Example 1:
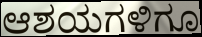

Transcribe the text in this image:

ಆಶಯಗಳಿಗೂ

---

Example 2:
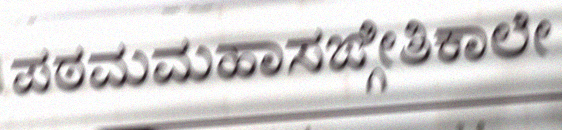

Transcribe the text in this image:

ಪಠಮಮಹಾಸಙ್ಗೀತಿಕಾಲೇ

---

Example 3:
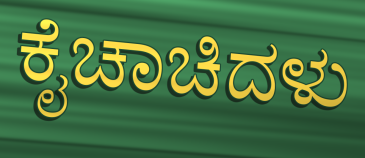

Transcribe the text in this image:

ಕೈಚಾಚಿದಳು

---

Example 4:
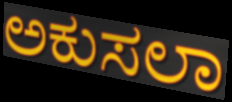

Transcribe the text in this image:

ಅಕುಸಲಾ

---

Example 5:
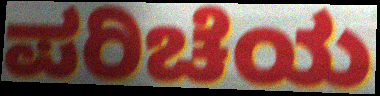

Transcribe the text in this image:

ಪರಿಚೆಯ